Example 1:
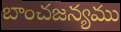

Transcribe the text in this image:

బాంచజన్యము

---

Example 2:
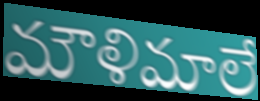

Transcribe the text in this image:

మౌళిమాలే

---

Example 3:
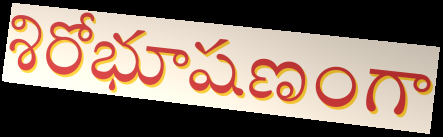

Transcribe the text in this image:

శిరోభూషణంగా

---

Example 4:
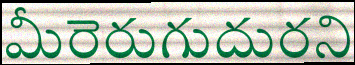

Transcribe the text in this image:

మీరెరుగుదురని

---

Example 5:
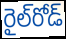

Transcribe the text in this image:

రైల్‌రోడ్